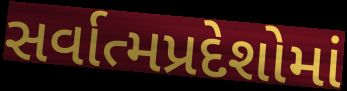
સર્વાત્મપ્રદેશોમાં